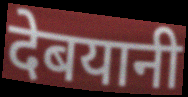
देबयानी